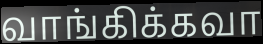
வாங்கிக்கவா